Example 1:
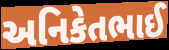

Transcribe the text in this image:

અનિકેતભાઈ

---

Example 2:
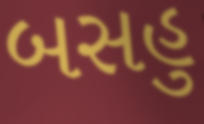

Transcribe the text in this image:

બસહુ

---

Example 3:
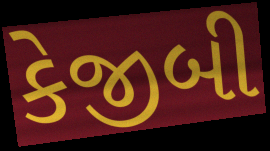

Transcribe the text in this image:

કેજીબી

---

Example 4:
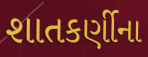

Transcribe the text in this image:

શાતકર્ણીના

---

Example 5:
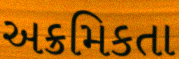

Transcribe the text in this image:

અક્રમિકતા